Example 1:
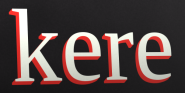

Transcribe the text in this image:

kere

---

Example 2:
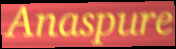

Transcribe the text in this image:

Anaspure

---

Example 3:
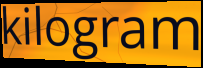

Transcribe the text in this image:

kilogram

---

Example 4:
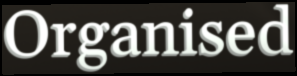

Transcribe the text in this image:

Organised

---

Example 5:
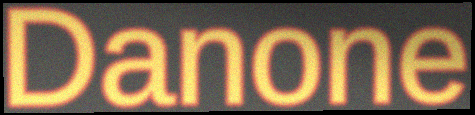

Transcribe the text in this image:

Danone